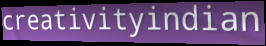
creativityindian